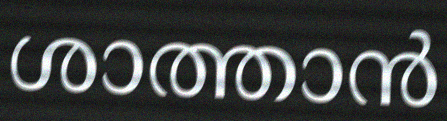
ശാത്താൻ